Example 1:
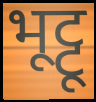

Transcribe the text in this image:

भूट्टू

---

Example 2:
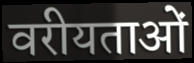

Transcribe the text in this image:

वरीयताओं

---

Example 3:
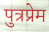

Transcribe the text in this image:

पुत्रप्रेम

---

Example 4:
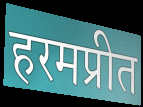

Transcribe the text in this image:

हरमप्रीत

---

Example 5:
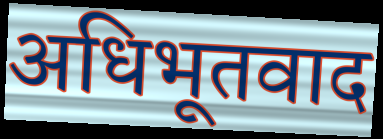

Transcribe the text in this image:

अधिभूतवाद